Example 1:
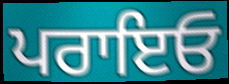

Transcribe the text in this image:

ਪਰਾਇਓ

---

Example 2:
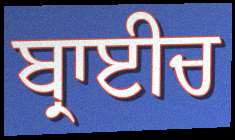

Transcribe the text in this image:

ਬ੍ਰਾਈਚ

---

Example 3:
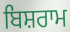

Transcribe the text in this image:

ਬਿਸ਼ਰਾਮ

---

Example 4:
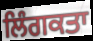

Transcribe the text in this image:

ਲਿੰਗਕਤਾ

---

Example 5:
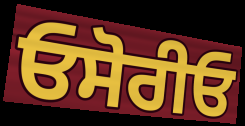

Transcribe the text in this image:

ਓਸੋਰੀਓ